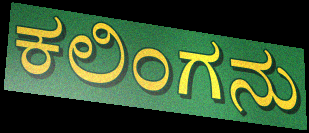
ಕಲಿಂಗನು